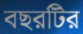
বছরটির